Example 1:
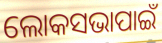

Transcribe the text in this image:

ଲୋକସଭାପାଇଁ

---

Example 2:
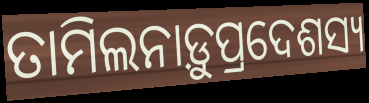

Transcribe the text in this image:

ତାମିଲନାଡ଼ୁପ୍ରଦେଶସ୍ୟ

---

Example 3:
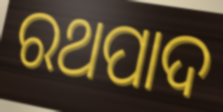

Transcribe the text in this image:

ରଥପାଦ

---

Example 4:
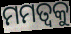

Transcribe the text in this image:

ମମତ୍ୱକୁ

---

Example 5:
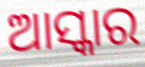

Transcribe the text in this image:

ଆସ୍କାର